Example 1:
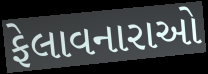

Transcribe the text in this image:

ફેલાવનારાઓ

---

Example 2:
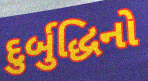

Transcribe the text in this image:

દુર્બુદ્ધિનો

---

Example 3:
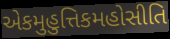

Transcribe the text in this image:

એકમુહુત્તિકમહોસીતિ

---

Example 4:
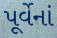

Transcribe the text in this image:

પૂર્વેનાં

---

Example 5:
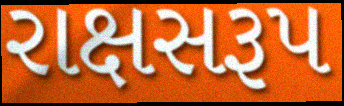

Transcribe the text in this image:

રાક્ષસરૂપ